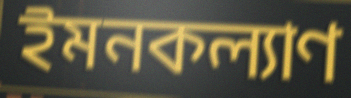
ইমনকল্যাণ